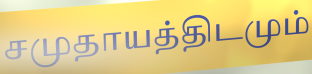
சமுதாயத்திடமும்